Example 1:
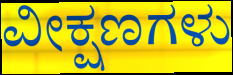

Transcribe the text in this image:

ವೀಕ್ಷಣಗಳು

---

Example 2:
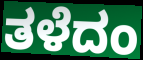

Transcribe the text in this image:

ತಳೆದಂ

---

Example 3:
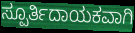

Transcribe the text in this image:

ಸ್ಪೂರ್ತಿದಾಯಕವಾಗಿ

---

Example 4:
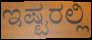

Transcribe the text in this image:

ಇಷ್ಟರಲ್ಲಿ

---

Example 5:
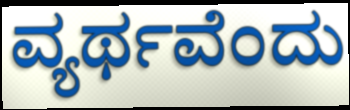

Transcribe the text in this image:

ವ್ಯರ್ಥವೆಂದು